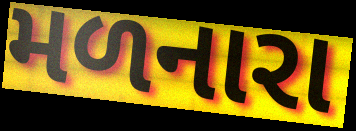
મળનારા